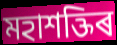
মহাশক্তিৰ